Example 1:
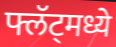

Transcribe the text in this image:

फ्लॅट्मध्ये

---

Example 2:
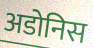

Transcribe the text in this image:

अडोनिस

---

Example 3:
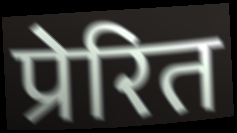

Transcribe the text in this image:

प्रेरित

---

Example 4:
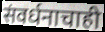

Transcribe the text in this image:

संवर्धनाचाही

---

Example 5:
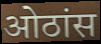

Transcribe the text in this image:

ओठांस